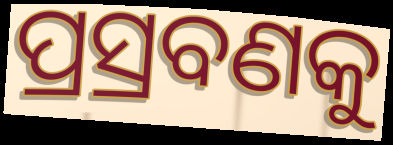
ପ୍ରସ୍ରବଣକୁ